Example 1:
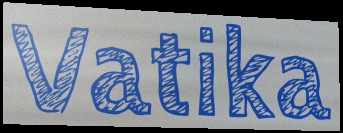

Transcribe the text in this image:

Vatika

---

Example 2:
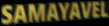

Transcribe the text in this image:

SAMAYAVEL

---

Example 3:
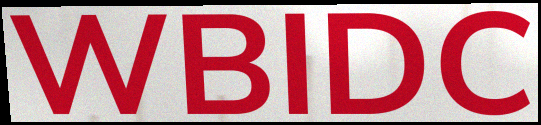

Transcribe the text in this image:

WBIDC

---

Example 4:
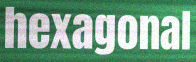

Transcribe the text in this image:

hexagonal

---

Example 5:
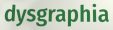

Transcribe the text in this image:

dysgraphia